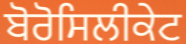
ਬੋਰੋਸਿਲੀਕੇਟ